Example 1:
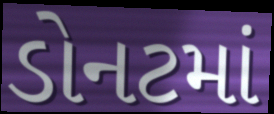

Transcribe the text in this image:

ડોનટમાં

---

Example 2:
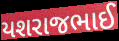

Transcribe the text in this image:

યશરાજભાઈ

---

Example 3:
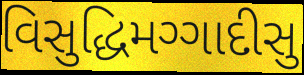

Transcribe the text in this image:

વિસુદ્ધિમગ્ગાદીસુ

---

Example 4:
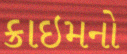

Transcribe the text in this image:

ક્રાઇમનો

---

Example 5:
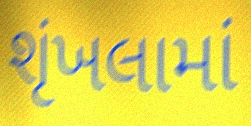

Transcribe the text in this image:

શૃંખલામાં